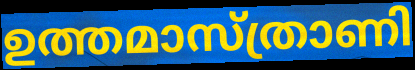
ഉത്തമാസ്ത്രാണി